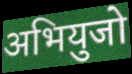
अभियुजो